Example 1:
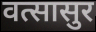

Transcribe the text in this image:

वत्सासुर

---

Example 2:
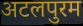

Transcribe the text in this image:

अटलपुरम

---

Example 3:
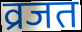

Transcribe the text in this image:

व्रजत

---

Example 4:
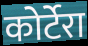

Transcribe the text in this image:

कोर्टेरा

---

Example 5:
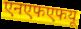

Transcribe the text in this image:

एनएफएफयू